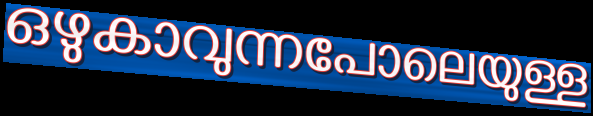
ഒഴുകാവുന്നപോലെയുള്ള